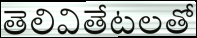
తెలివితేటలతో